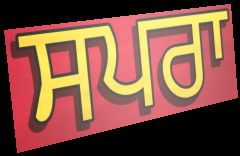
ਸਪਰਾ